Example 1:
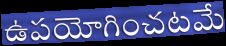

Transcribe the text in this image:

ఉపయోగించటమే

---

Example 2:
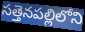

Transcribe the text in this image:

సత్తెనపల్లిలోని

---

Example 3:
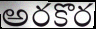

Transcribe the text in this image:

అరకొర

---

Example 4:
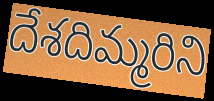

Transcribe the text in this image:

దేశదిమ్మరిని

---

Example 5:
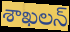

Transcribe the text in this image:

శాఖలన్